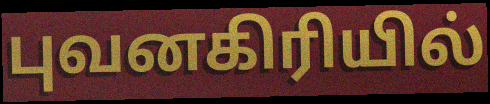
புவனகிரியில்